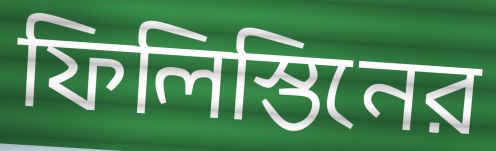
ফিলিস্তিনের